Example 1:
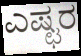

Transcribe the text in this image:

ಎಷ್ಟರ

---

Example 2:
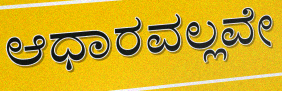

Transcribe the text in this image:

ಆಧಾರವಲ್ಲವೇ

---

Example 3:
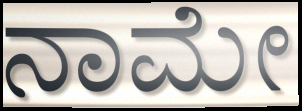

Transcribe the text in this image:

ನಾಮೇ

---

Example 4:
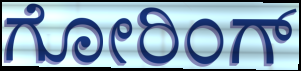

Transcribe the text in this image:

ಗೋರಿಂಗ್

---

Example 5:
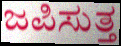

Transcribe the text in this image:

ಜಪಿಸುತ್ತ